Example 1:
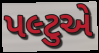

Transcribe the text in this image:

પલ્ટુએ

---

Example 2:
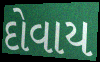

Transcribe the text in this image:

દોવાય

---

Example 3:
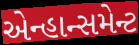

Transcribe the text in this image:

એન્હાન્સમેન્ટ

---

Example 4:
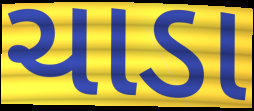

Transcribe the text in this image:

ચાડા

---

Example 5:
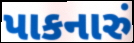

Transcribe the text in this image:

પાકનારું